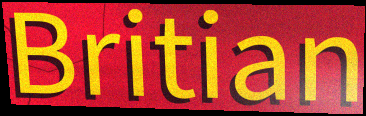
Britian